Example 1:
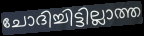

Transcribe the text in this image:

ചോദിച്ചിട്ടില്ലാത്ത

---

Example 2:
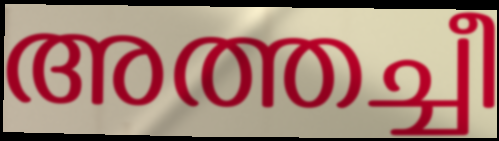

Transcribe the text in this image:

അത്തച്ചീ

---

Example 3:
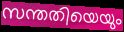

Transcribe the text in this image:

സന്തതിയെയും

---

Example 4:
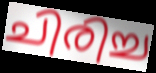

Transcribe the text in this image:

ചിരിച്ച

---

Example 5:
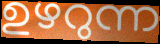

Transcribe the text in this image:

ഉഴറുന്ന